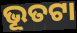
ଭୂତଟା